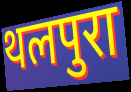
थलपुरा